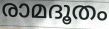
രാമദൂതം